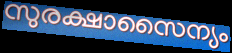
സുരക്ഷാസൈന്യം